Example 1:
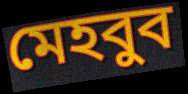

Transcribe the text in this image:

মেহবুব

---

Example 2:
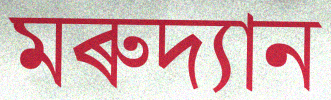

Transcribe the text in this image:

মৰুদ্যান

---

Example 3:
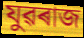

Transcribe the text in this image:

যুৱৰাজ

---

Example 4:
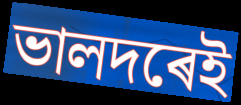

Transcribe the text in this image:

ভালদৰেই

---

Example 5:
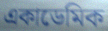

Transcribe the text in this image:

একাডেমিক